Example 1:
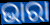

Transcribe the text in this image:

ଭାରା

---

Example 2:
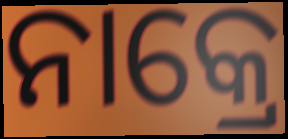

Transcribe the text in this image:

ନାକ୍ରେ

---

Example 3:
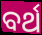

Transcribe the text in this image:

ବର୍ଥ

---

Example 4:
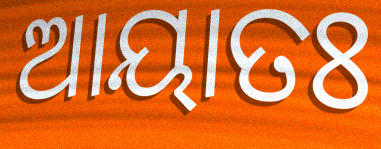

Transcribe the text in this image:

ଆୟାତଃ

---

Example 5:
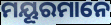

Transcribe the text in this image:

ମୟୂରମାନେ